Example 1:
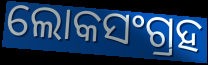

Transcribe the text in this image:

ଲୋକସଂଗ୍ରହ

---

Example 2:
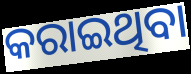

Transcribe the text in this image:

କରାଇଥିବା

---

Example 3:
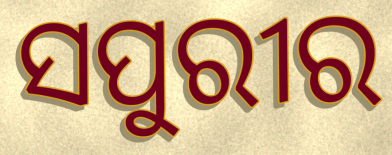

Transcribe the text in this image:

ସପୁରୀର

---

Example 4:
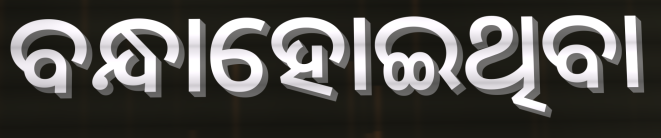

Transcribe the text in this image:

ବନ୍ଧାହୋଇଥିବା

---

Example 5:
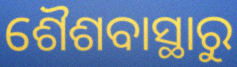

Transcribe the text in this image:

ଶୈଶବାସ୍ଥାରୁ